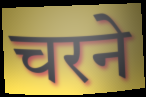
चरने